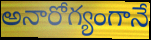
అనారోగ్యంగానే